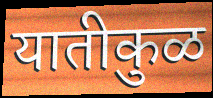
यातीकुळ